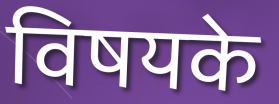
विषयके